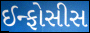
ઈન્ફોસીસ